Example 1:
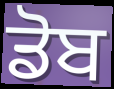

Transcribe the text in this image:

ਡੋਬ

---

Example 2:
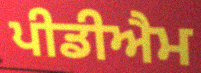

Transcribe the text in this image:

ਪੀਡੀਐਮ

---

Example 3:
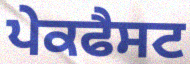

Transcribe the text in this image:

ਪੇਕਫੈਸਟ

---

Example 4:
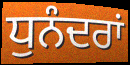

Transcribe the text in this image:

ਧੁਨੰਦਰਾਂ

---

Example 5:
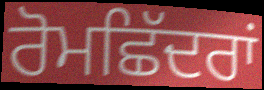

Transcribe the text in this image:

ਰੋਮਛਿੱਦਰਾਂ